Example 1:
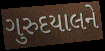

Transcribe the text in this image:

ગુરુદયાલને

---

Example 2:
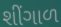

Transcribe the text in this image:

શીંગાળ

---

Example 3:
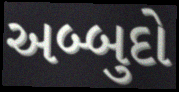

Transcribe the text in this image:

અબ્બુદો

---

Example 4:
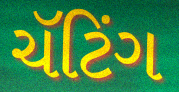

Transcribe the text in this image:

ચૅટિંગ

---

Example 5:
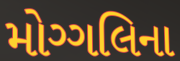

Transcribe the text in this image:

મોગ્ગલિના